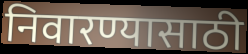
निवारण्यासाठी